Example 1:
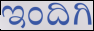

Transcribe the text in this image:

ಇಂದಿಗಿ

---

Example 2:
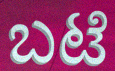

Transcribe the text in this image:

ಬಟೆ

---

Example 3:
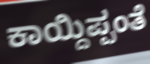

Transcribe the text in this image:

ಕಾಯ್ದಿಪ್ಪಂತೆ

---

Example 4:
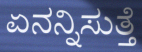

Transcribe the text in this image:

ಏನನ್ನಿಸುತ್ತೆ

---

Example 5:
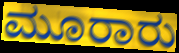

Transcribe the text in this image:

ಮೂರಾರು